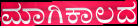
ಮಾಗಿಕಾಲದ